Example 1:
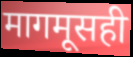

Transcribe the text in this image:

मागमूसही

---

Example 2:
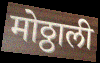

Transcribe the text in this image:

मोठ्ठाली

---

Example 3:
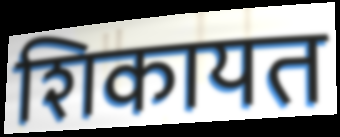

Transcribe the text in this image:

शिकायत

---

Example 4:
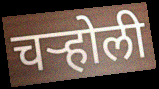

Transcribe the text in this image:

चऱ्होली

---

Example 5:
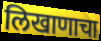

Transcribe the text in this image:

लिखाणाचा